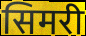
सिमरी